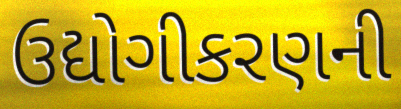
ઉદ્યોગીકરણની